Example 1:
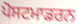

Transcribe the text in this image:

ਪੋਸਟਮਾਡਰਨ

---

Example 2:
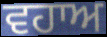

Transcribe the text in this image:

ਵਹਾਅ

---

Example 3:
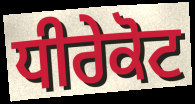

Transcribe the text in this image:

ਧੀਰੇਕੋਟ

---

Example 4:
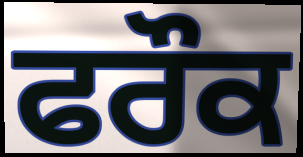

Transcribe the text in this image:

ਫਰੌਕ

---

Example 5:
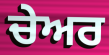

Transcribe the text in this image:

ਚੇਅਰ